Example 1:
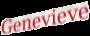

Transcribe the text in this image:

Genevieve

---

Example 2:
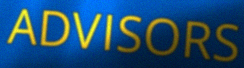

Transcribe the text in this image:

ADVISORS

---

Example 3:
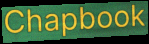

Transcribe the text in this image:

Chapbook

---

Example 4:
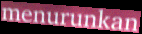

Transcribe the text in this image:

menurunkan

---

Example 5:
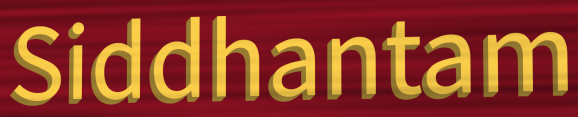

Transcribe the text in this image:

Siddhantam